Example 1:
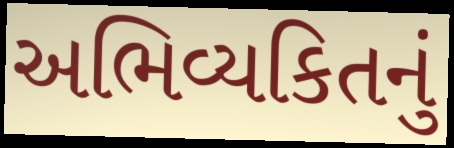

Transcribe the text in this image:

અભિવ્યકિતનું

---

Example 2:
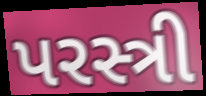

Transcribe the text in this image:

પરસ્ત્રી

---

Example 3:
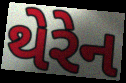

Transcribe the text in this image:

થેરેન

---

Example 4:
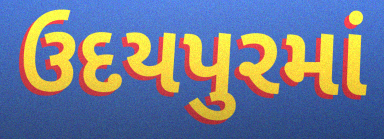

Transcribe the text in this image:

ઉદયપુરમાં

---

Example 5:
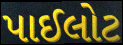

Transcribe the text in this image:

પાઈલોટ